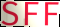
SFF